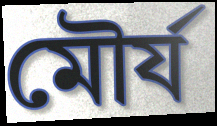
মৌর্য